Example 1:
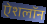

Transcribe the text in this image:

ऐशलॉन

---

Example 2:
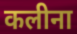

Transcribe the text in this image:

कलीना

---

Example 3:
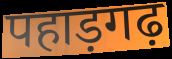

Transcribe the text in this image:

पहाड़गढ़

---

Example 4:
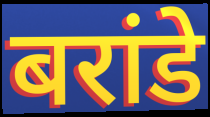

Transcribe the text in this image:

बरांडे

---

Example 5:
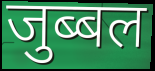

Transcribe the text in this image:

जुब्बल